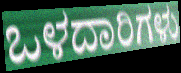
ಒಳದಾರಿಗಳು